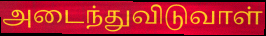
அடைந்துவிடுவாள்